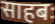
साहबः